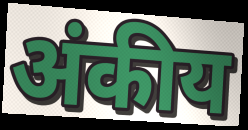
अंकीय